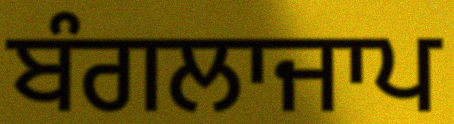
ਬੰਗਲਾਜਾਪ